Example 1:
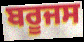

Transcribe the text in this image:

ਬਰੂਜਸ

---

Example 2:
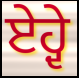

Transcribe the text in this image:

ਏਹ੍ਦੇ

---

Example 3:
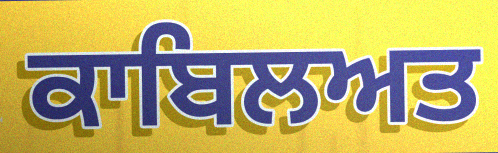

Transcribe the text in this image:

ਕਾਬਿਲਅਤ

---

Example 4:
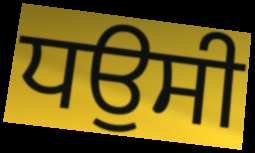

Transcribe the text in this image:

ਧਉਸੀ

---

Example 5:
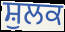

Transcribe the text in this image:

ਸ਼ੁਲਕ